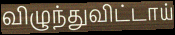
விழுந்துவிட்டாய்